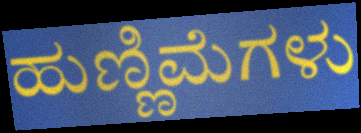
ಹುಣ್ಣಿಮೆಗಳು